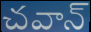
చవాన్